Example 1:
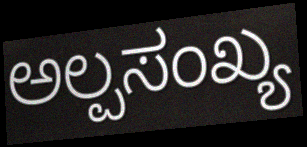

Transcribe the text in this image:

ಅಲ್ಪಸಂಖ್ಯ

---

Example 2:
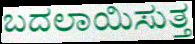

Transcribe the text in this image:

ಬದಲಾಯಿಸುತ್ತ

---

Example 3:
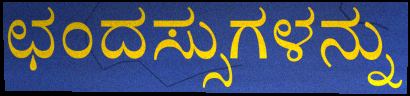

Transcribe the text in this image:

ಛಂದಸ್ಸುಗಳನ್ನು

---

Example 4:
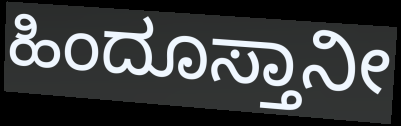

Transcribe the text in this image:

ಹಿಂದೂಸ್ತಾನೀ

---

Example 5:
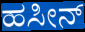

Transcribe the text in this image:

ಹಸೀನ್